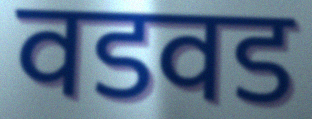
वडवड